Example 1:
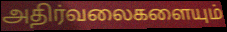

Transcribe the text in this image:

அதிர்வலைகளையும்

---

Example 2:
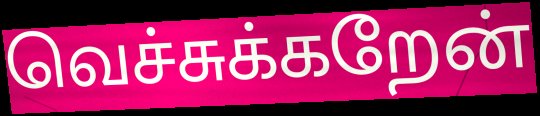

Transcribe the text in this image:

வெச்சுக்கறேன்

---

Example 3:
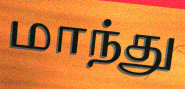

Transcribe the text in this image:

மாந்து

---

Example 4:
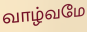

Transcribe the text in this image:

வாழ்வமே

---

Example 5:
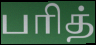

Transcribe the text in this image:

பரித்